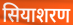
सियाशरण